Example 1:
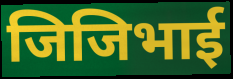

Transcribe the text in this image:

जिजिभाई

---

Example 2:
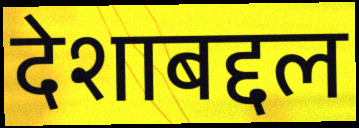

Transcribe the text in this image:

देशाबद्दल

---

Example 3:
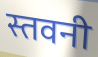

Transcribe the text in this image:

स्तवनी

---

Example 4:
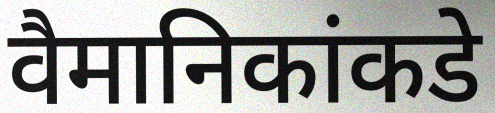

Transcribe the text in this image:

वैमानिकांकडे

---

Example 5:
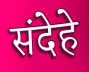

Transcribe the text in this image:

संदेहे